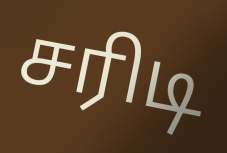
சரிடி